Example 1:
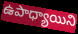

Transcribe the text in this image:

ఉపాధ్యాయిని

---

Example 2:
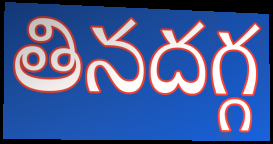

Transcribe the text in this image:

తినదగ్గ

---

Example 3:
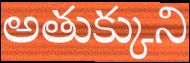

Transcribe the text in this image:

అతుక్కుని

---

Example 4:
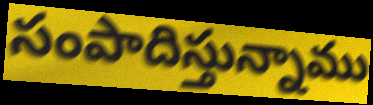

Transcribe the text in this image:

సంపాదిస్తున్నాము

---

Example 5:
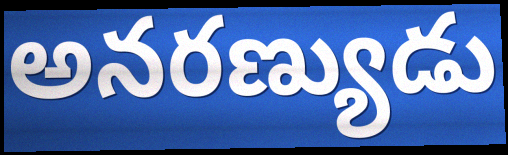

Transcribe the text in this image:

అనరణ్యుడు